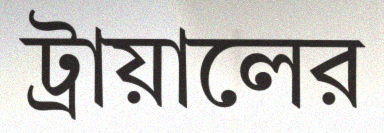
ট্রায়ালের